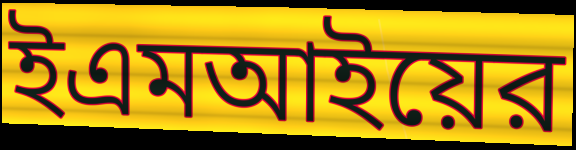
ইএমআইয়ের